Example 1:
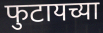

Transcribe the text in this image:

फुटायच्या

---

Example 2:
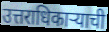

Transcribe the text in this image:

उत्तराधिकाऱ्याची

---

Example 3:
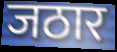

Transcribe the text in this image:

जठार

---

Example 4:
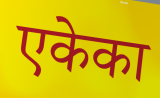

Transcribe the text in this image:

एकेका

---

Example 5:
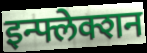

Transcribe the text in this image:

इन्फ्लेक्शन